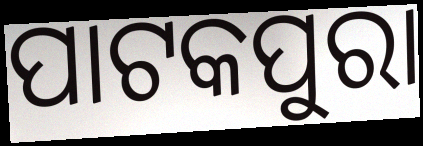
ପାଟକପୁରା